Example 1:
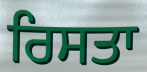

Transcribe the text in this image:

ਰਿਸਤਾ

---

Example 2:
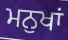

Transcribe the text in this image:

ਮਨੁਖਾਂ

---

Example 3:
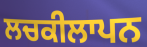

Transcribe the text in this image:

ਲਚਕੀਲਾਪਨ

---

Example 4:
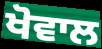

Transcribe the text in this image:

ਖੋਵਾਲ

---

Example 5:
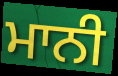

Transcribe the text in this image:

ਮਾਨੀ